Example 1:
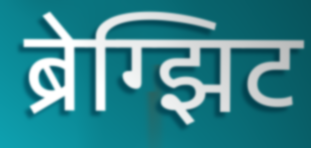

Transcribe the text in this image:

ब्रेग्झिट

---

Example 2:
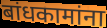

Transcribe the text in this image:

बांधकामांना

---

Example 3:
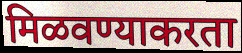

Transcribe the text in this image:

मिळवण्याकरता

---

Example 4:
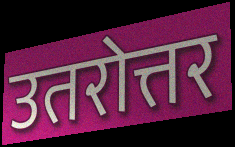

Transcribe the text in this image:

उतरोत्तर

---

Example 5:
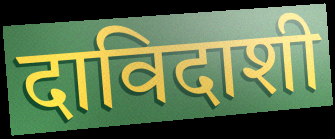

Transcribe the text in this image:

दाविदाशी